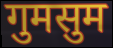
गुमसुम